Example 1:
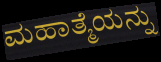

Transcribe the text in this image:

ಮಹಾತ್ಮೆಯನ್ನು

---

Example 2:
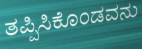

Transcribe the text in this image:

ತಪ್ಪಿಸಿಕೊಂಡವನು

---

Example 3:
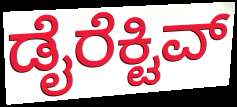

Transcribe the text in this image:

ಡೈರೆಕ್ಟಿವ್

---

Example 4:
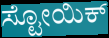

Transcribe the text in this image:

ಸ್ಟೋಯಿಕ್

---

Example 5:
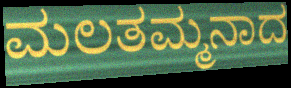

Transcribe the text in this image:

ಮಲತಮ್ಮನಾದ